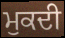
ਮੁਕਦੀ